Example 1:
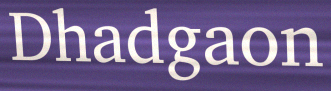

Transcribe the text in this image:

Dhadgaon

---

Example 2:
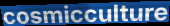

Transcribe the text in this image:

cosmicculture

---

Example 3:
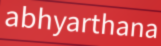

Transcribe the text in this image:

abhyarthana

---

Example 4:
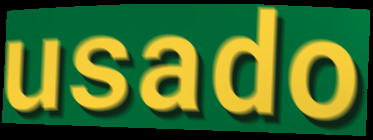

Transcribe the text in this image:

usado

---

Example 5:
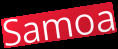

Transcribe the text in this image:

Samoa